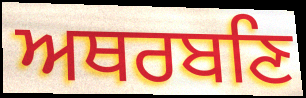
ਅਥਰਬਣਿ